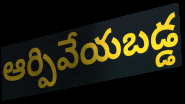
ఆర్పివేయబడ్డ